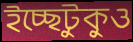
ইচ্ছেটুকুও